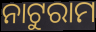
ନାଟୁରାମ